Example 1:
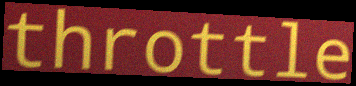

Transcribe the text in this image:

throttle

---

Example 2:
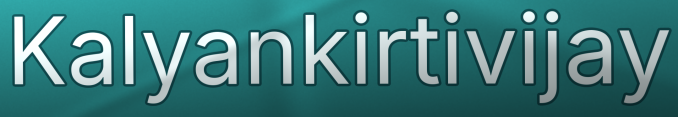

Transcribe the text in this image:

Kalyankirtivijay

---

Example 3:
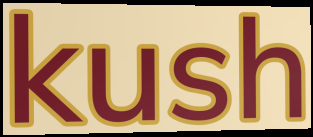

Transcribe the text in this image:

kush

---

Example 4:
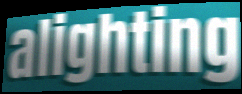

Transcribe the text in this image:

alighting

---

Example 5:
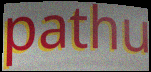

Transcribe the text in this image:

pathu